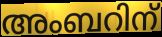
അംബറിന്